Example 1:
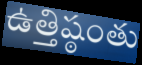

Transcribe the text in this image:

ఉత్తిష్ఠంతు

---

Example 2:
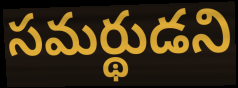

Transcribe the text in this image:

సమర్థుడని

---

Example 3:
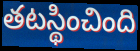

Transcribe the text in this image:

తటస్థించింది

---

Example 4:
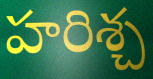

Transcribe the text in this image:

హరిశ్చ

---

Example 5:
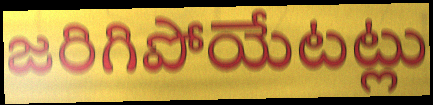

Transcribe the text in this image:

జరిగిపోయేటట్లు